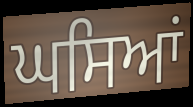
ਘਸਿਆਂ